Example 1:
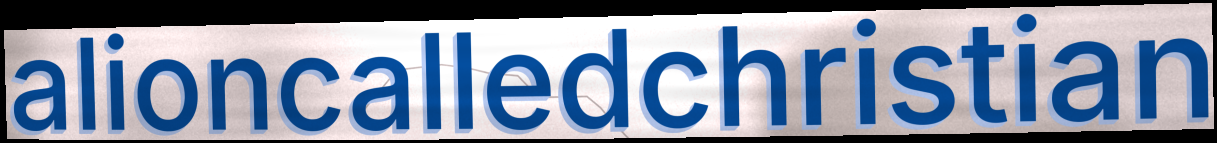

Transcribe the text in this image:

alioncalledchristian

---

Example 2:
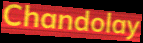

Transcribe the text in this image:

Chandolay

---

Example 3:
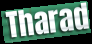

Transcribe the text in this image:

Tharad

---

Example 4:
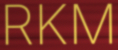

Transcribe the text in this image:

RKM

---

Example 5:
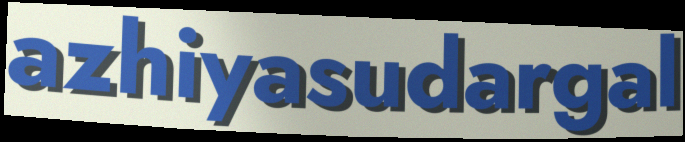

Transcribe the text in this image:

azhiyasudargal